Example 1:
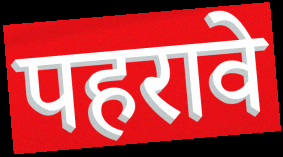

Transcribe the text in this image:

पहरावे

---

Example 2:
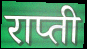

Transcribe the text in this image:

राप्ती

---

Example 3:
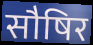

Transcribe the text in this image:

सौषिर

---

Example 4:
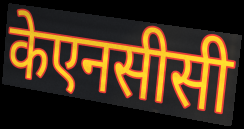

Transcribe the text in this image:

केएनसीसी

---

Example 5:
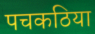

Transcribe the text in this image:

पचकठिया